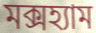
মক্সহ্যাম